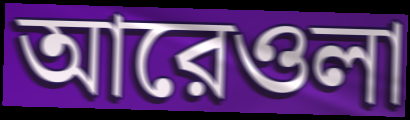
আরেওলা